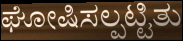
ಘೋಷಿಸಲ್ಪಟ್ಟಿತು